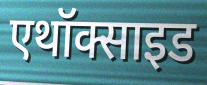
एथॉक्साइड